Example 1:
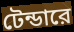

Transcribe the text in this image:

টেন্ডারে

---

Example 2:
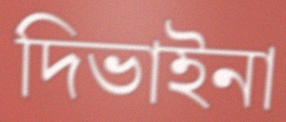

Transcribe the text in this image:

দিভাইনা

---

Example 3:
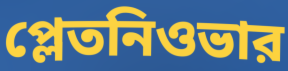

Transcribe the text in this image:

প্লেতনিওভার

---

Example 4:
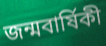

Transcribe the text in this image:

জন্মবার্ষিকী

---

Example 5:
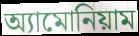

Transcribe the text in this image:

অ্যামোনিয়াম